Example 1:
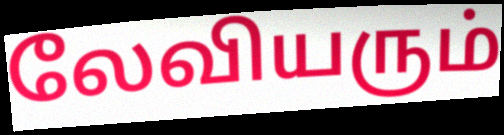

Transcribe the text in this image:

லேவியரும்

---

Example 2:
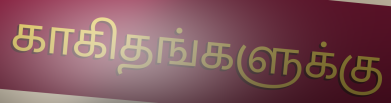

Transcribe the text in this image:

காகிதங்களுக்கு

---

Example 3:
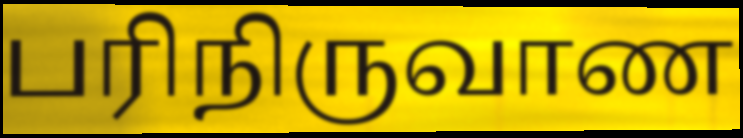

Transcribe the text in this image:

பரிநிருவாண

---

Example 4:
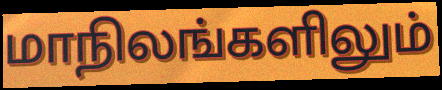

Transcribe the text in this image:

மாநிலங்களிலும்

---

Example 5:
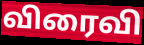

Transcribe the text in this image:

விரைவி